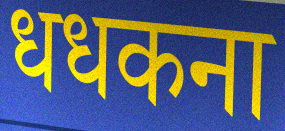
धधकना